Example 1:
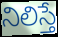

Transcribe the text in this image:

నిలిస్తే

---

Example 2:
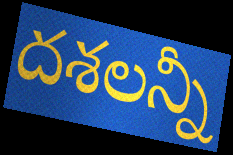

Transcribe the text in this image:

దశలన్నీ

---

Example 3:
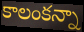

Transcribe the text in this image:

కాలంకన్నా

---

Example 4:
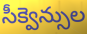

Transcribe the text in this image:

సీక్వెన్సుల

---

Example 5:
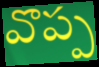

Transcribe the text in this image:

వొప్ప